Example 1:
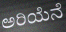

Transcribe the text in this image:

ಅರಿಯೆನೆ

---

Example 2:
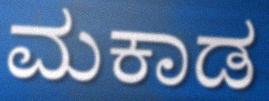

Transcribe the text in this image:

ಮಕಾಡ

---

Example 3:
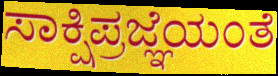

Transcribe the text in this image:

ಸಾಕ್ಷಿಪ್ರಜ್ಞೆಯಂತೆ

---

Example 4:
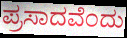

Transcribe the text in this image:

ಪ್ರಸಾದವೆಂದು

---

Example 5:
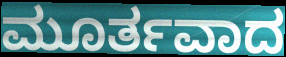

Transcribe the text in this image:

ಮೂರ್ತವಾದ